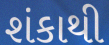
શંકાથી